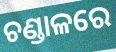
ଚଣ୍ଡାଳରେ